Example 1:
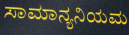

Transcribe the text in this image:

ಸಾಮಾನ್ಯನಿಯಮ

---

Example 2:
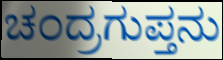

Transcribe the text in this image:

ಚಂದ್ರಗುಪ್ತನು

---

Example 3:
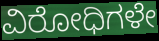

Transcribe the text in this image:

ವಿರೋಧಿಗಳೇ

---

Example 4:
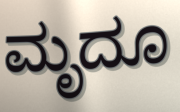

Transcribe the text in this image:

ಮೃದೂ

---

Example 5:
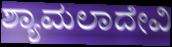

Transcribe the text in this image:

ಶ್ಯಾಮಲಾದೇವಿ